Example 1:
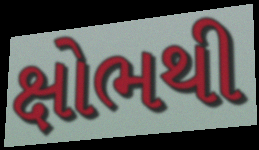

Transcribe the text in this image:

ક્ષોભથી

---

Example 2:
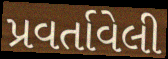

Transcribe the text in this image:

પ્રવર્તાવેલી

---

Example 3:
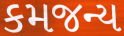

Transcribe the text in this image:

કમજન્ય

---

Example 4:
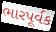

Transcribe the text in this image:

ભારપૂર્વક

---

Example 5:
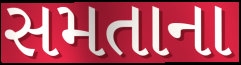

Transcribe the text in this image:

સમતાના